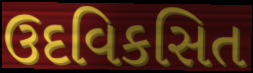
ઉદવિકસિત